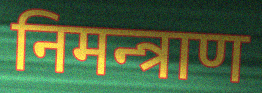
निमन्त्राण